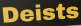
Deists